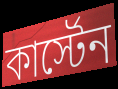
কার্স্টেন